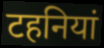
टहनियां